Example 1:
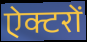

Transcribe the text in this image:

ऐक्टरों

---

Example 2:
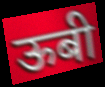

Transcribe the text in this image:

ऊबी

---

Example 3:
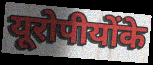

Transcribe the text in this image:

यूरोपीयोंके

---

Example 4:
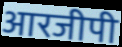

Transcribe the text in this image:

आरजीपी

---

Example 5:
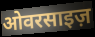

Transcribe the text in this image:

ओवरसाइज़